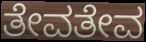
ತೇವತೇವ